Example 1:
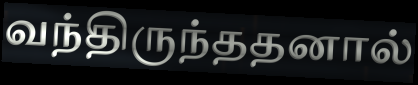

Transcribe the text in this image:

வந்திருந்ததனால்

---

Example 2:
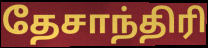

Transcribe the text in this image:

தேசாந்திரி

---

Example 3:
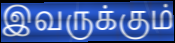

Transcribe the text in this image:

இவருக்கும்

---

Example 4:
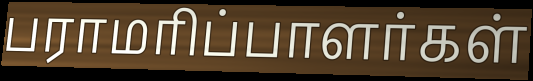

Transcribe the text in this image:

பராமரிப்பாளர்கள்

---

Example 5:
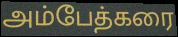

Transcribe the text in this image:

அம்பேத்கரை